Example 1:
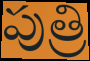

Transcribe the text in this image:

పుత్రి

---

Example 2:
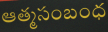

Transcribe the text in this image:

ఆత్మసంబంధ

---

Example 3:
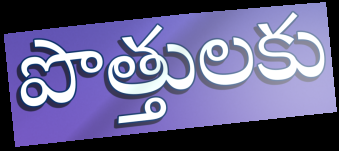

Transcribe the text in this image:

పొత్తులకు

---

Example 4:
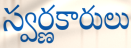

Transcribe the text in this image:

స్వర్ణకారులు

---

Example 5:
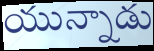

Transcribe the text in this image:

యున్నాడు